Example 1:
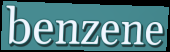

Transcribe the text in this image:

benzene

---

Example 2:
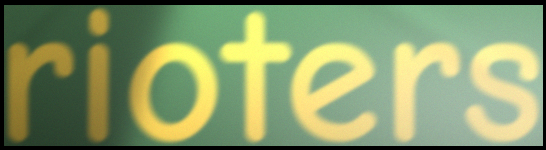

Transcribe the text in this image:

rioters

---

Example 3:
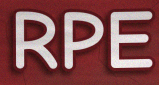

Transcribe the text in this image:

RPE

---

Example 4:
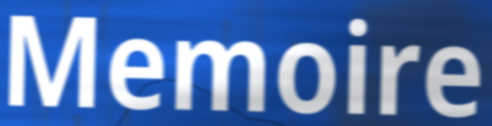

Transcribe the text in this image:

Memoire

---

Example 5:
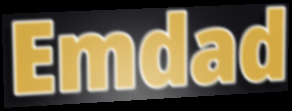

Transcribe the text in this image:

Emdad